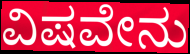
ವಿಷವೇನು